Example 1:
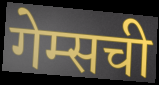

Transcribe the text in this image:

गेम्सची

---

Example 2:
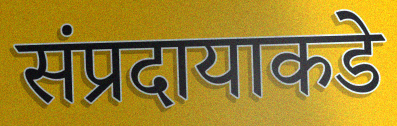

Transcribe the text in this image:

संप्रदायाकडे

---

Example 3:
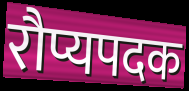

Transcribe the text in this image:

रौप्यपदक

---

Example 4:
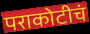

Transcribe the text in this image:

पराकोटीचं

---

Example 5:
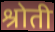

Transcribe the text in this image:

श्रोती